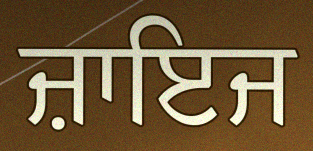
ਜ਼ਾਇਜ